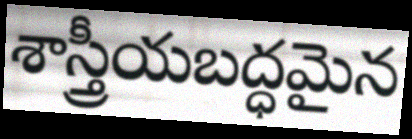
శాస్త్రీయబద్ధమైన